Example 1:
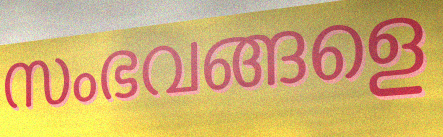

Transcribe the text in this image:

സംഭവങ്ങളെ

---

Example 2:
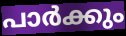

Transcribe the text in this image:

പാർക്കും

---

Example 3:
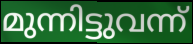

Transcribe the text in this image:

മുന്നിട്ടുവന്ന്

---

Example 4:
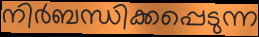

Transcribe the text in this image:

നിർബന്ധിക്കപ്പെടുന്ന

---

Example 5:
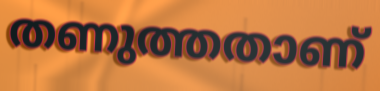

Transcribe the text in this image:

തണുത്തതാണ്